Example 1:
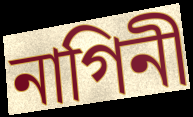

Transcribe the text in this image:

নাগিনী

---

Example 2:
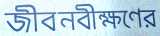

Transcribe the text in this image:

জীবনবীক্ষণের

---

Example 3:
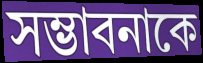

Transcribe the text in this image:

সম্ভাবনাকে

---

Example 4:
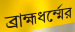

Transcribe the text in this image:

ব্রাহ্মধর্ম্মের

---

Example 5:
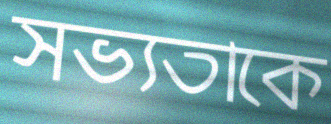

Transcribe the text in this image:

সভ্যতাকে